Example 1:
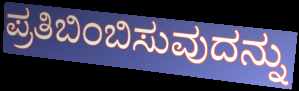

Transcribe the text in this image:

ಪ್ರತಿಬಿಂಬಿಸುವುದನ್ನು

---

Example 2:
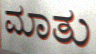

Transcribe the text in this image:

ಮಾತು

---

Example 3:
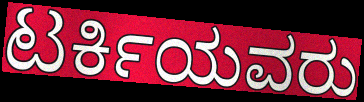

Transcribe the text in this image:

ಟರ್ಕಿಯವರು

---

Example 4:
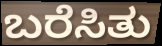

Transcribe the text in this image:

ಬರೆಸಿತು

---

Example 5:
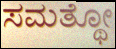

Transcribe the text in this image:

ಸಮತ್ಥೋ